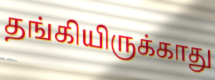
தங்கியிருக்காது